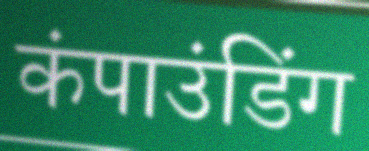
कंपाउंडिंग